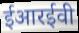
ईआरईवी